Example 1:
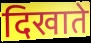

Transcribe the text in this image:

दिखाते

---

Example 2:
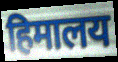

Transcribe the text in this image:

हिमालय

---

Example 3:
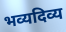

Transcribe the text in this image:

भव्यदिव्य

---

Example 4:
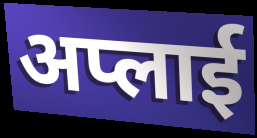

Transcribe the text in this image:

अप्लाई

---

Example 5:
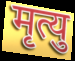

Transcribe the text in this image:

मृत्यु